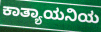
ಕಾತ್ಯಾಯನಿಯ